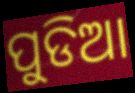
ପୁଡିଆ